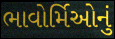
ભાવોર્મિઓનું